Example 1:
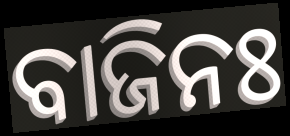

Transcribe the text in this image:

ବାଜିନଃ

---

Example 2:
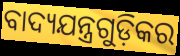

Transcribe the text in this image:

ବାଦ୍ୟଯନ୍ତ୍ରଗୁଡ଼ିକର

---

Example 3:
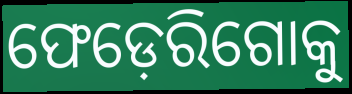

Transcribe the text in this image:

ଫେଡ଼େରିଗୋକୁ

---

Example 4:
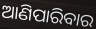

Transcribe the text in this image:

ଆଣିପାରିବାର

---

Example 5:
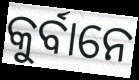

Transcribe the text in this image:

କୁର୍ବାନେ